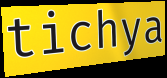
tichya